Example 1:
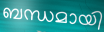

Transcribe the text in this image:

ബന്ധമായി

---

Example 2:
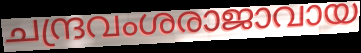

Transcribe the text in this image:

ചന്ദ്രവംശരാജാവായ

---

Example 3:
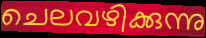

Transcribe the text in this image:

ചെലവഴിക്കുന്നു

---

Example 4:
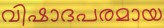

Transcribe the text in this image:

വിഷാദപരമായ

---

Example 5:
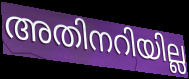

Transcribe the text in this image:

അതിനറിയില്ല